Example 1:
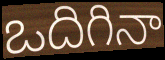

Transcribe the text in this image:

ఒదిగినా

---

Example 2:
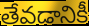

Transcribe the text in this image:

తేవడానికీ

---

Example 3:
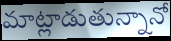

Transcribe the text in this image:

మాట్లాడుతున్నానో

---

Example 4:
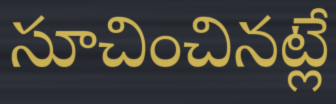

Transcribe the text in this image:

సూచించినట్లే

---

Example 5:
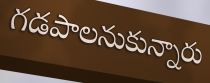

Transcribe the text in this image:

గడపాలనుకున్నారు